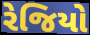
રેજિયો